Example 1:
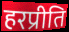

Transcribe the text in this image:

हरप्रीति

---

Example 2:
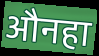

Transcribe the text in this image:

औनहा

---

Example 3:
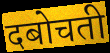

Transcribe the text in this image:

दबोचती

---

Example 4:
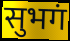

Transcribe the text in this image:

सुभगं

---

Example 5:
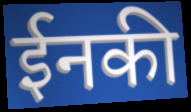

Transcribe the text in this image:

ईनकी